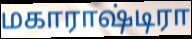
மகாராஷ்டிரா